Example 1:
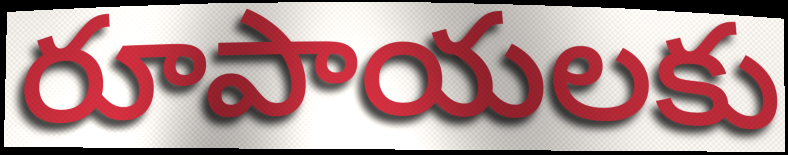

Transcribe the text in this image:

రూపాయలకు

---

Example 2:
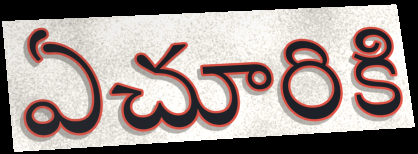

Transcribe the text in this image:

ఏచూరికి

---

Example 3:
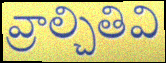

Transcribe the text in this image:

వ్రాల్చితివి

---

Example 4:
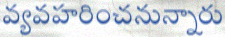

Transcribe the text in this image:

వ్యవహరించనున్నారు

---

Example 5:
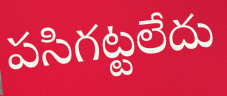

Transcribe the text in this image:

పసిగట్టలేదు